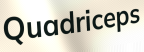
Quadriceps